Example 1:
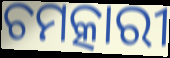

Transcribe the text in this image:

ଚମତ୍କାରୀ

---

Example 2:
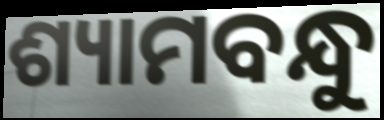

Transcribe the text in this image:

ଶ୍ୟାମବନ୍ଧୁ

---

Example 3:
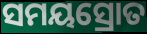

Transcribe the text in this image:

ସମୟସ୍ରୋତ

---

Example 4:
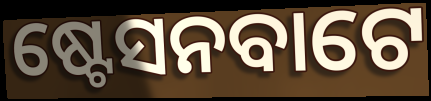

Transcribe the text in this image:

ଷ୍ଟେସନବାଟେ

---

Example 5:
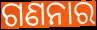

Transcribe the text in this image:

ଗଣନାର